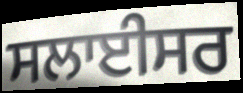
ਸਲਾਈਸਰ